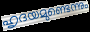
ഹൃദയമുണ്ടെന്നും